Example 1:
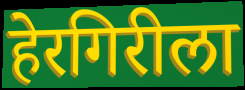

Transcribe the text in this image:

हेरगिरीला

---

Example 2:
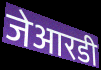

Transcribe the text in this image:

जेआरडी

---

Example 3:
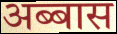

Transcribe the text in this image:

अब्बास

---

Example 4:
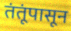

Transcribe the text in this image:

तंतूंपासून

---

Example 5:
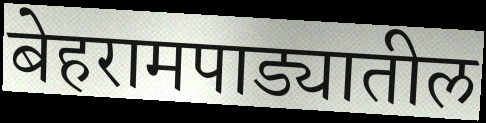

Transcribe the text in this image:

बेहरामपाड्यातील